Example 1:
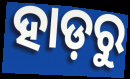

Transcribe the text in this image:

ହାଡ଼ରୁ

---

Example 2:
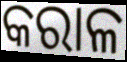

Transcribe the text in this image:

କରାଳ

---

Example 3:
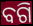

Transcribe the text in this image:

ବଗି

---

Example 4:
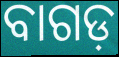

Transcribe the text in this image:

ବାଗଡ଼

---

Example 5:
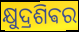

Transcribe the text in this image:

କ୍ଷୁଦ୍ରଶିଵର